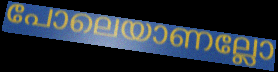
പോലെയാണല്ലോ